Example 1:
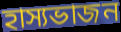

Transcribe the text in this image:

হাস্যভাজন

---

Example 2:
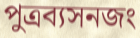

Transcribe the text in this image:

পুত্রব্যসনজং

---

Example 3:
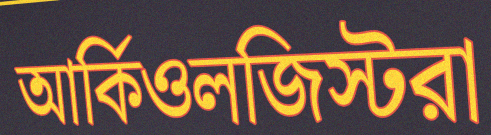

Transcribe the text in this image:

আর্কিওলজিস্টরা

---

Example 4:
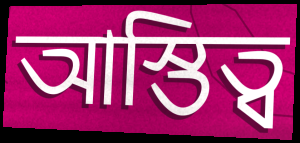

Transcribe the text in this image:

আস্তিত্ব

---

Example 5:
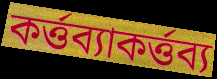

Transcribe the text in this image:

কর্ত্তব্যাকর্ত্তব্য